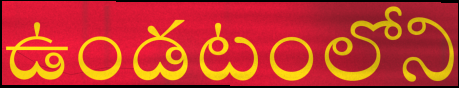
ఉండటంలోని